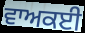
ਵਾਅਕਈ